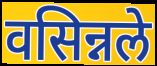
वसिन्नले